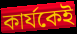
কার্যকেই